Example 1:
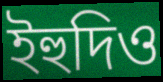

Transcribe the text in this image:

ইহুদিও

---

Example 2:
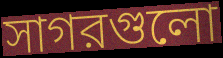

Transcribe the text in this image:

সাগরগুলো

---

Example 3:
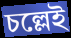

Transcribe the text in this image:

চল্লেই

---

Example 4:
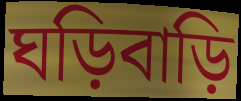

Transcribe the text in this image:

ঘড়িবাড়ি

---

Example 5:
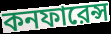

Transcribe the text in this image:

কনফারেন্স